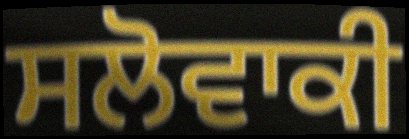
ਸਲੋਵਾਕੀ